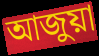
আজুয়া